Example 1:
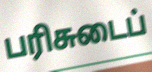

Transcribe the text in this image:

பரிசுடைப்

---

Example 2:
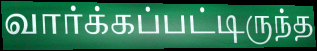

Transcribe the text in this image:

வார்க்கப்பட்டிருந்த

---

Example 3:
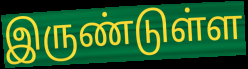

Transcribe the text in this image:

இருண்டுள்ள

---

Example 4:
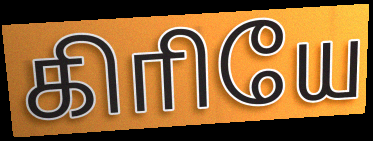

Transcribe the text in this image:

கிரியே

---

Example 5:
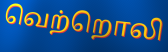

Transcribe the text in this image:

வெற்றொலி